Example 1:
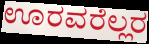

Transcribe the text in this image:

ಊರವರೆಲ್ಲರ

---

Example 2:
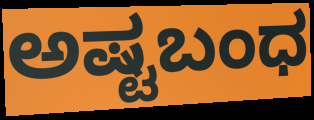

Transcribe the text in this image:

ಅಷ್ಟಬಂಧ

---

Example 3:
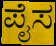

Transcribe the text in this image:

ಪೈಸ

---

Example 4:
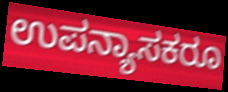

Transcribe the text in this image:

ಉಪನ್ಯಾಸಕರೂ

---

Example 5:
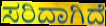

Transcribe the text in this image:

ಸರಿದಾಗಿದೆ